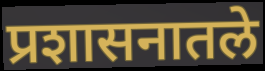
प्रशासनातले